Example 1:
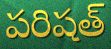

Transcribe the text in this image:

పరిషత్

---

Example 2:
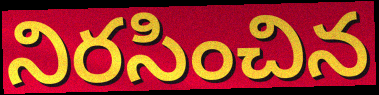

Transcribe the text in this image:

నిరసించిన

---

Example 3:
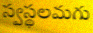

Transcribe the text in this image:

స్వస్థలమగు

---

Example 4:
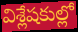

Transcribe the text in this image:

విశ్లేషకుల్లో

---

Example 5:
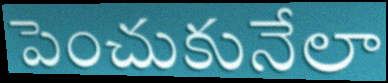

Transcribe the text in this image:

పెంచుకునేలా